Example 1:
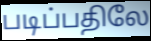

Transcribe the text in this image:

படிப்பதிலே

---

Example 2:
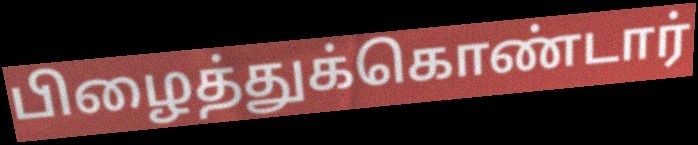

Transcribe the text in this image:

பிழைத்துக்கொண்டார்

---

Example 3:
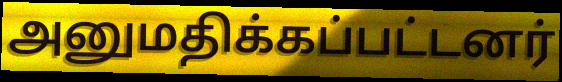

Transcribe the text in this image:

அனுமதிக்கப்பட்டனர்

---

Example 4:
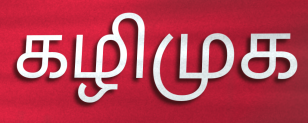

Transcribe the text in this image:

கழிமுக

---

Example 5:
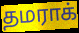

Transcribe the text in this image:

தமராக்